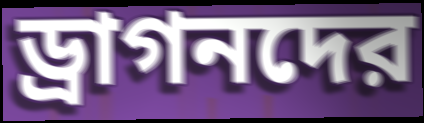
ড্রাগনদের